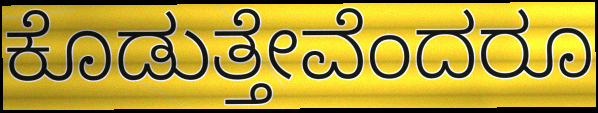
ಕೊಡುತ್ತೇವೆಂದರೂ